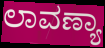
ಲಾವಣ್ಯಾ